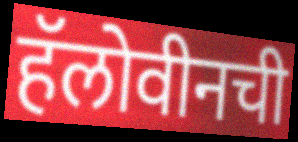
हॅलोवीनची